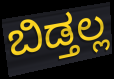
ಬಿಡ್ತಲ್ಲ